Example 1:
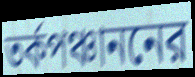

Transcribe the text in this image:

তর্কপঞ্চাননের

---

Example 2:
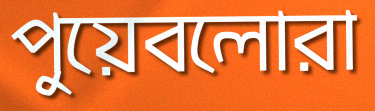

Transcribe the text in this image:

পুয়েবলোরা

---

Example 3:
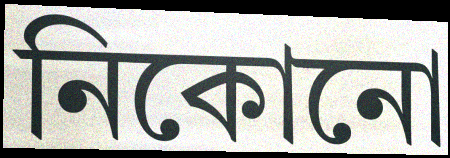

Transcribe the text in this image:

নিকোনো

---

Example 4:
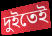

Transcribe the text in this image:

দুইতেই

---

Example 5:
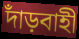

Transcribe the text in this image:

দাঁড়বাহী